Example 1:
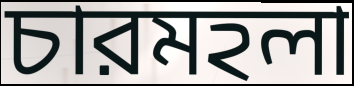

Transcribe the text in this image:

চারমহলা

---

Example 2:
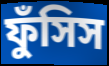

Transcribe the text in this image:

ফুঁসিস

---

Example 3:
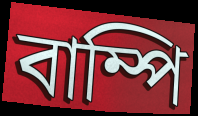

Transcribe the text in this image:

বাম্পি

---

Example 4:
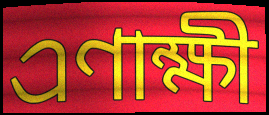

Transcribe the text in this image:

এণাক্ষী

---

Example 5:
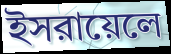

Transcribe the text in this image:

ইসরায়েলে